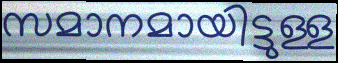
സമാനമായിട്ടുള്ള